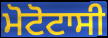
ਮੋਟੋਟਾਸੀ